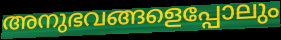
അനുഭവങ്ങളെപ്പോലും